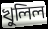
খুলিল